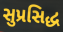
સુપ્રસિદ્ધ